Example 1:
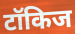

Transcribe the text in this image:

टॉकिज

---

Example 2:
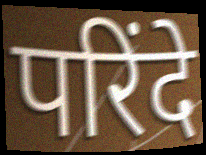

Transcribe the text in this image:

परिंदे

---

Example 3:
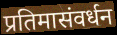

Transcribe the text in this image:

प्रतिमासंवर्धन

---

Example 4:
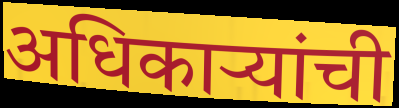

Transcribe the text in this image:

अधिकाऱ्यांची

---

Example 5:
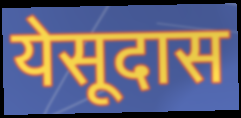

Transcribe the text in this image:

येसूदास